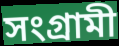
সংগ্রামী